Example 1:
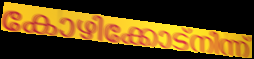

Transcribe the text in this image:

കോഴിക്കോട്നിന്ന്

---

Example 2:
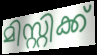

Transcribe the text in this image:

മിസ്റ്റിക്ക്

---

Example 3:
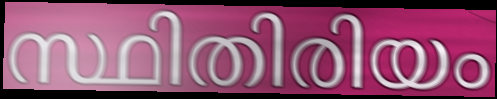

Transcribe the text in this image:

സ്ഥിതിരിയം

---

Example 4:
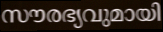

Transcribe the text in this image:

സൗരഭ്യവുമായി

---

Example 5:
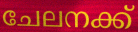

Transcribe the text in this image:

ചേലനക്ക്